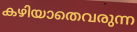
കഴിയാതെവരുന്ന